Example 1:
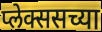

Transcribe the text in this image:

प्लेक्ससच्या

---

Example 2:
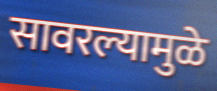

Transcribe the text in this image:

सावरल्यामुळे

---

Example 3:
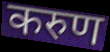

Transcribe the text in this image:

करुण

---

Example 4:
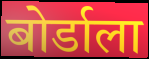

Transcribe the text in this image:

बोर्डाला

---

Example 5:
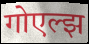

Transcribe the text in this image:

गोएल्झ